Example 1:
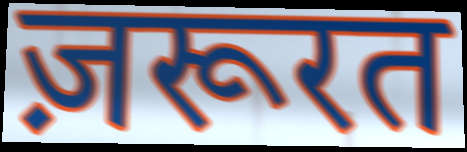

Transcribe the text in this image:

ज़रूरत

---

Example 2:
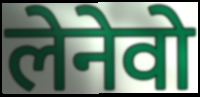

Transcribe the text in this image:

लेनेवो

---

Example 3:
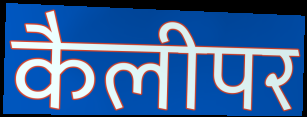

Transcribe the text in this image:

कैलीपर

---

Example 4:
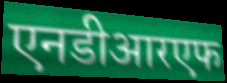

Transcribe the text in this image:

एनडीआरएफ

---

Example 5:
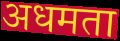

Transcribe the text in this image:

अधमता